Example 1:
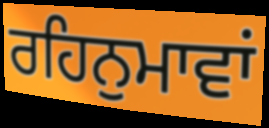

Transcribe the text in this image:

ਰਹਿਨੁਮਾਵਾਂ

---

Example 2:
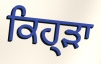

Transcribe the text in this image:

ਕਿਹ੍ੜਾ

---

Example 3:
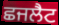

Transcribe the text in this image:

ਛਜਲੈਟ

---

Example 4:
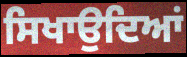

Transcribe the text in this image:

ਸਿਖਾਉਦਿਆਂ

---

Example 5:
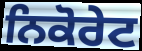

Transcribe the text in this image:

ਨਿਕੋਰੇਟ